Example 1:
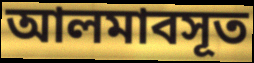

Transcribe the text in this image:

আলমাবসূত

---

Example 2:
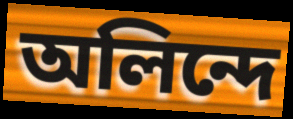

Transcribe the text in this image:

অলিন্দে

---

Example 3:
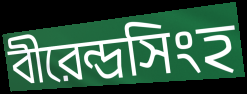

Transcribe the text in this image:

বীরেন্দ্রসিংহ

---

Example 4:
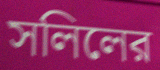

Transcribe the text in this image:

সলিলের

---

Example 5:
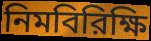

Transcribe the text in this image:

নিমবিরিক্ষি